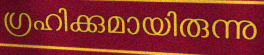
ഗ്രഹിക്കുമായിരുന്നു